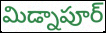
మిడ్నాపూర్